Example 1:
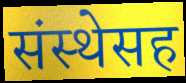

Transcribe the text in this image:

संस्थेसह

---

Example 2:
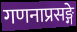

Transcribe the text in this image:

गणनाप्रसङ्गे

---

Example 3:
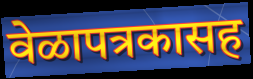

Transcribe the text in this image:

वेळापत्रकासह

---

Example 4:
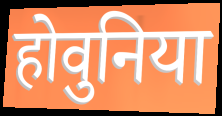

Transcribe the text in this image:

होवुनिया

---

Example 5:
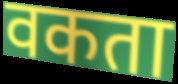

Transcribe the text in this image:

वकता